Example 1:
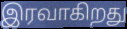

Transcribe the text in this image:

இரவாகிறது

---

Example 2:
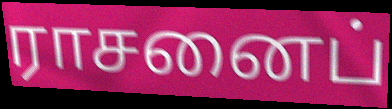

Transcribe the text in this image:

ராசனைப்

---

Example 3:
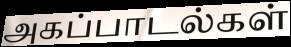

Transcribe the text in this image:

அகப்பாடல்கள்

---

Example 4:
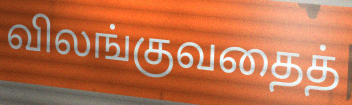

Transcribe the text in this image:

விலங்குவதைத்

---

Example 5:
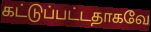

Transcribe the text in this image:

கட்டுப்பட்டதாகவே